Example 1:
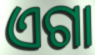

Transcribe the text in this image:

ଏଗା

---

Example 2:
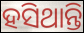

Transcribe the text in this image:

ହସିଥାନ୍ତି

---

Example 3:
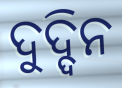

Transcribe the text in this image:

ଦୁଦ୍ଦିନ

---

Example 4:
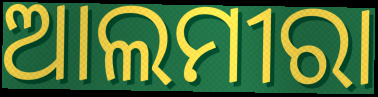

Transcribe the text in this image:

ଆଲମୀରା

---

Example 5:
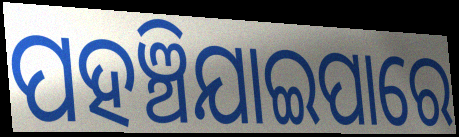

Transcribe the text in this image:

ପହଞ୍ଚିଯାଇପାରେ